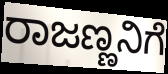
ರಾಜಣ್ಣನಿಗೆ